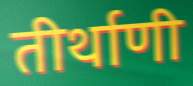
तीर्थाणी